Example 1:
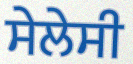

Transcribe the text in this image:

ਸੇਲੇਸੀ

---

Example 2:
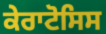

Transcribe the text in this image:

ਕੇਰਾਟੋਸਿਸ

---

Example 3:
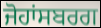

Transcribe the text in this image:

ਜੋਹਾਂਸਬਰਗ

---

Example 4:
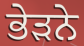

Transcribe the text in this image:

ਭੇੜਨੇ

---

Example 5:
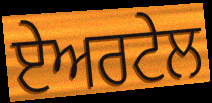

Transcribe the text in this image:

ਏਅਰਟੇਲ